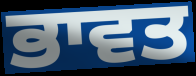
ਭਾਵਤ